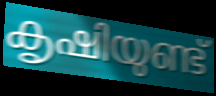
കൃഷിയുണ്ട്